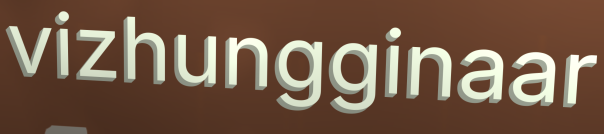
vizhungginaar